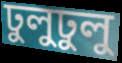
ঢুলুঢুলু